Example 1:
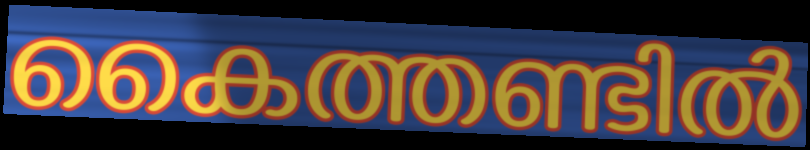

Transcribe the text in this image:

കൈത്തണ്ടിൽ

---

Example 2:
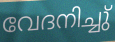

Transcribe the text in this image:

വേദനിച്ചു്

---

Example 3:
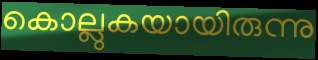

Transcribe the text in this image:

കൊല്ലുകയായിരുന്നു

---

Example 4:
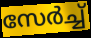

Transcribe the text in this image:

സേർച്ച്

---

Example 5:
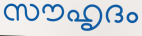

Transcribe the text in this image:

സൗഹൃദം